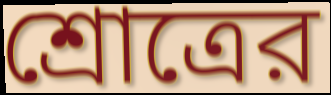
শ্রোত্রের